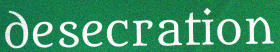
desecration